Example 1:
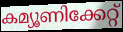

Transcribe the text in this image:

കമ്യൂണിക്കേറ്റ്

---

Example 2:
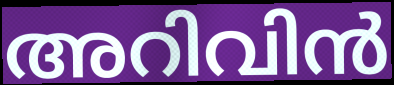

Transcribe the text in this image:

അറിവിൻ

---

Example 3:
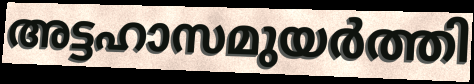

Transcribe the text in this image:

അട്ടഹാസമുയർത്തി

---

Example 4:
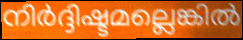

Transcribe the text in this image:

നിർദ്ദിഷ്ടമല്ലെങ്കിൽ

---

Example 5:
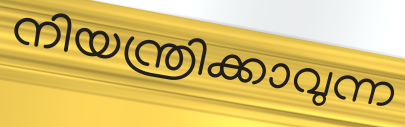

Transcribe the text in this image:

നിയന്ത്രിക്കാവുന്ന